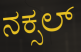
ನಕ್ಸಲ್